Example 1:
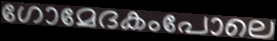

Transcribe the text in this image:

ഗോമേദകംപോലെ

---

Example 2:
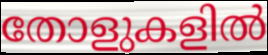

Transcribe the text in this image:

തോളുകളിൽ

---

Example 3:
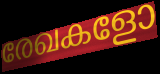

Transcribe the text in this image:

രേഖകളോ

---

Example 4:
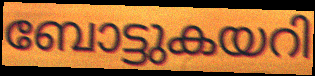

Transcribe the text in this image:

ബോട്ടുകയറി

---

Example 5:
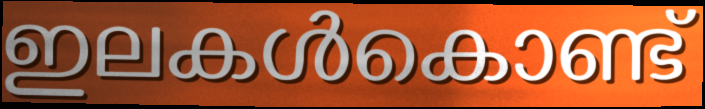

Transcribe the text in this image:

ഇലകൾകൊണ്ട്